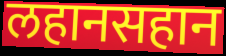
लहानसहान